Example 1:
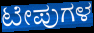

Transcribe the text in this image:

ಟೇಪುಗಳ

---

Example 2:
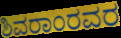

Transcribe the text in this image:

ಶಿವರಾಂರವರ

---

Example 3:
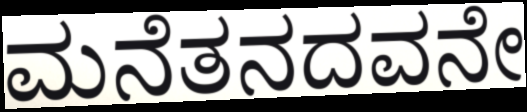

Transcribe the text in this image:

ಮನೆತನದವನೇ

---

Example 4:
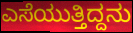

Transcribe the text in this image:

ಎಸೆಯುತ್ತಿದ್ದನು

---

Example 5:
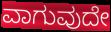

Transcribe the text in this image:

ವಾಗುವುದೇ